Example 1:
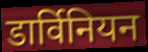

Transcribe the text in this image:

डार्विनियन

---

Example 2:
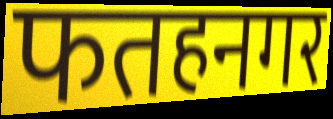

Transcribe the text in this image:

फतहनगर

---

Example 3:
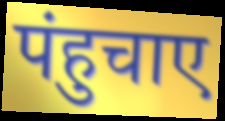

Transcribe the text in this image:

पंहुचाए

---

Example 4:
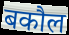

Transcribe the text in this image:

बकौल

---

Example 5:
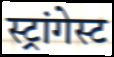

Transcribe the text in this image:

स्ट्रांगेस्ट